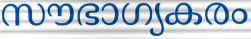
സൗഭാഗ്യകരം